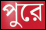
পুরে